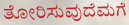
ತೋರಿಸುವುದೆಮಗೆ